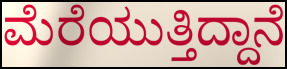
ಮೆರೆಯುತ್ತಿದ್ದಾನೆ